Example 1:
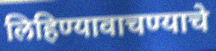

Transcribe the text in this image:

लिहिण्यावाचण्याचे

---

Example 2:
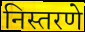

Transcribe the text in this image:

निस्तरणे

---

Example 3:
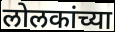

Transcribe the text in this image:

लोलकांच्या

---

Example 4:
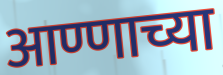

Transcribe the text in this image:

आण्णाच्या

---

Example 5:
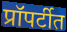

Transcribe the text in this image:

प्रॉपर्टीत